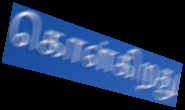
கொள்கிறது